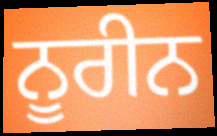
ਨੂਰੀਨ